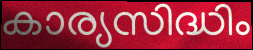
കാര്യസിദ്ധിം